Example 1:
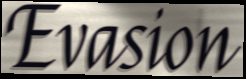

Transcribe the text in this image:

Evasion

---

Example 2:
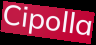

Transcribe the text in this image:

Cipolla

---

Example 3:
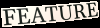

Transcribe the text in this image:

FEATURE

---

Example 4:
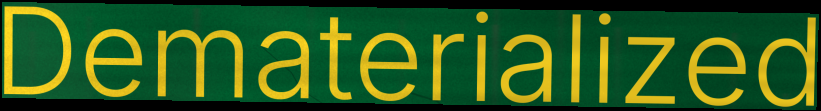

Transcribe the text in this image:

Dematerialized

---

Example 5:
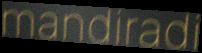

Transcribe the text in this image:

mandiradi